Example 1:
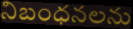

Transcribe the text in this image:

నిబంధనలను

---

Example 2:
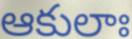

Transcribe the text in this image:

ఆకులాః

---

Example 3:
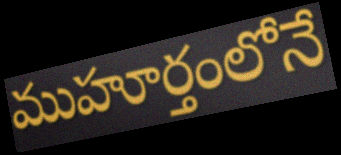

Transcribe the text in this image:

ముహూర్తంలోనే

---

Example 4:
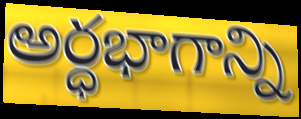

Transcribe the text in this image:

అర్ధభాగాన్ని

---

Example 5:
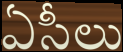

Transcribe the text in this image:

ఏసీలు